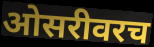
ओसरीवरच